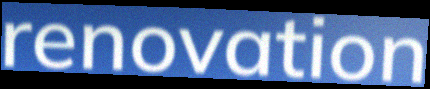
renovation